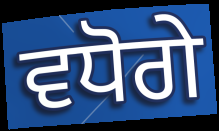
ਵਧੋਗੇ